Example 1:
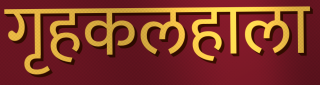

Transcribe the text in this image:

गृहकलहाला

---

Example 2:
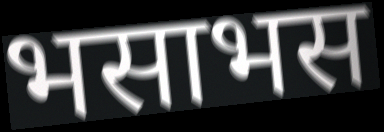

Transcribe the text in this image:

भसाभस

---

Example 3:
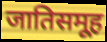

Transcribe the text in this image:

जातिसमूह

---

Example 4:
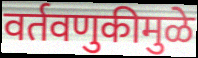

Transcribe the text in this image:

वर्तवणुकीमुळे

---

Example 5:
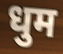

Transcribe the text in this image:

धुम